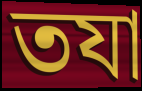
তযা